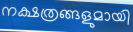
നക്ഷത്രങ്ങളുമായി